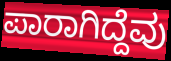
ಪಾರಾಗಿದ್ದೆವು